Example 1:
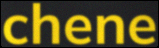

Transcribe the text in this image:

chene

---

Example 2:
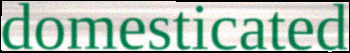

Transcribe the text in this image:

domesticated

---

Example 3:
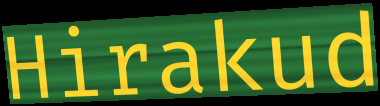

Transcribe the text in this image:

Hirakud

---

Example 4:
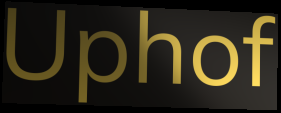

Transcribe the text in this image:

Uphof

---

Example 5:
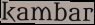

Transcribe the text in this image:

kambar